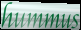
hummus